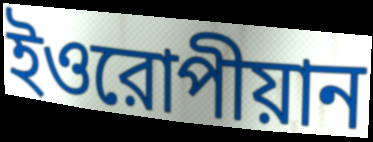
ইওরোপীয়ান